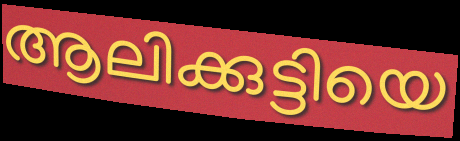
ആലിക്കുട്ടിയെ